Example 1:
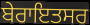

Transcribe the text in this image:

ਬੇਰਾਇਤਸਰ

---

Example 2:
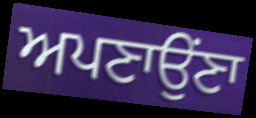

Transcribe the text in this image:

ਅਪਣਾਉਂਣਾ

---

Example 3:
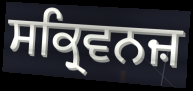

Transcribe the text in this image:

ਸਕ੍ਰਿਵਨਜ਼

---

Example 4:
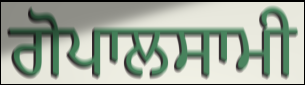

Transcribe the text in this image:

ਗੋਪਾਲਸਾਮੀ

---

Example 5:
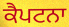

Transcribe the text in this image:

ਕੈਪਟਨਾ